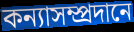
কন্যাসম্প্রদানে